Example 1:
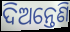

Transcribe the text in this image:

ଦିଅନ୍ତେଣି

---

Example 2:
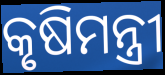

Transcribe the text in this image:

କୃଷିମନ୍ତ୍ରୀ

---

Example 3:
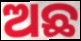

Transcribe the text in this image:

ଅଛ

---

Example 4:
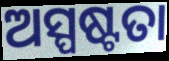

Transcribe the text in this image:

ଅସ୍ପଷ୍ଟତା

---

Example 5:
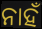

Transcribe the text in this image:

ନାହଁ